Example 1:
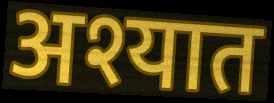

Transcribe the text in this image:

अश्यात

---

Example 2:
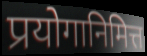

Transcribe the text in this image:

प्रयोगानिमित्त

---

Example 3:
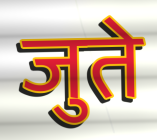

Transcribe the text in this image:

जुते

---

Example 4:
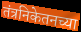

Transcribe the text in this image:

तंत्रनिकेतनच्या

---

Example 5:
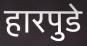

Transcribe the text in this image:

हारपुडे